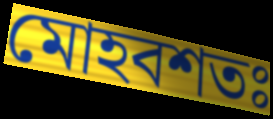
মোহবশতঃ